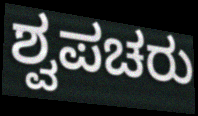
ಶ್ವಪಚರು